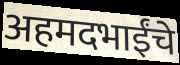
अहमदभाईंचे